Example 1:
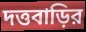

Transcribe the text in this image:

দত্তবাড়ির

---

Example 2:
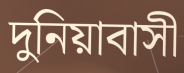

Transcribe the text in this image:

দুনিয়াবাসী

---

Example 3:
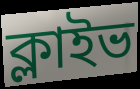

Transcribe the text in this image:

ক্লাইভ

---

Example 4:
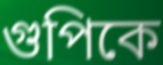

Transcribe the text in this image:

গুপিকে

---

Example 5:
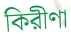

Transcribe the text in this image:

কিরীণা